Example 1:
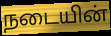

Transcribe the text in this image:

நடையின்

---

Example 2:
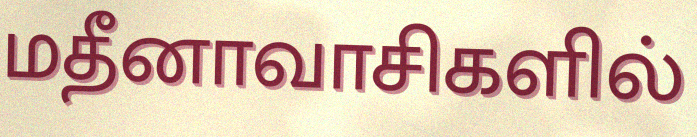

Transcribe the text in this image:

மதீனாவாசிகளில்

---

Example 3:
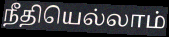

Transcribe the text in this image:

நீதியெல்லாம்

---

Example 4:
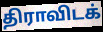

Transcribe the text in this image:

திராவிடக்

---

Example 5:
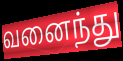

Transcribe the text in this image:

வனைந்து